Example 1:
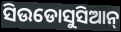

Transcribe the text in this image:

ସିଉଡୋସୁସିଆନ୍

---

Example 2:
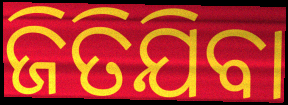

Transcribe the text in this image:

ଜିତିଯିବା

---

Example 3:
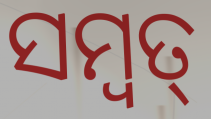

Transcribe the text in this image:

ସମ୍ବତ୍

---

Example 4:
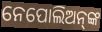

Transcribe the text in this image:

ନେପୋଲିଅନ୍‌ଙ୍କ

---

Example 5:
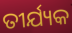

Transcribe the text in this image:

ତୀର୍ଯ୍ୟକ